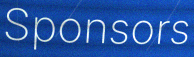
Sponsors